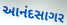
આનંદસાગર